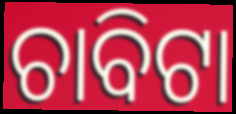
ଚାବିଟା